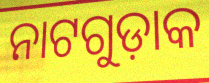
ନାଟଗୁଡ଼ାକ